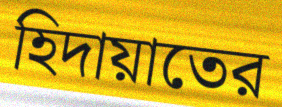
হিদায়াতের